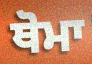
ਥੋਮਾ